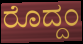
ರೊದ್ದಂ